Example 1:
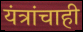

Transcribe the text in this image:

यंत्रांचाही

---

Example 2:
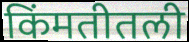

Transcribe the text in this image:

किंमतीतली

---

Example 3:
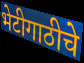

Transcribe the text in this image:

भेटीगाठीचे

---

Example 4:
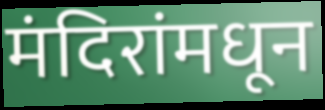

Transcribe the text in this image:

मंदिरांमधून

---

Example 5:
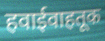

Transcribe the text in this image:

हवाईवाहतूक